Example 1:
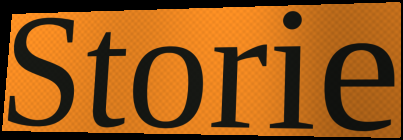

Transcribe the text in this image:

Storie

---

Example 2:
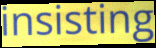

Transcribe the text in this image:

insisting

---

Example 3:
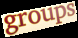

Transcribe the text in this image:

groups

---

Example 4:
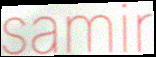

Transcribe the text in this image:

samir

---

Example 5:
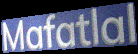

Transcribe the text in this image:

Mafatlal